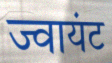
ज्वायंट